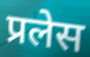
प्रलेस